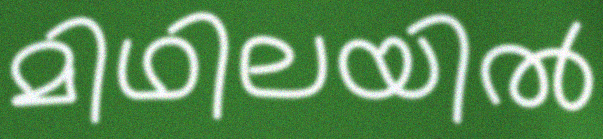
മിഥിലയിൽ